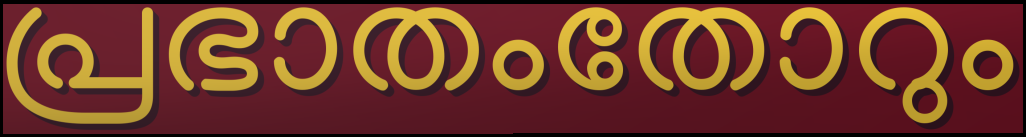
പ്രഭാതംതോറും